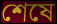
শেষে